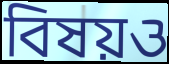
বিষয়ও